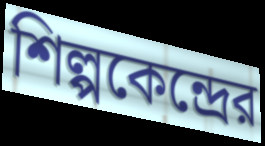
শিল্পকেন্দ্রের